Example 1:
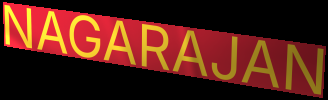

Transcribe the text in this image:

NAGARAJAN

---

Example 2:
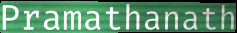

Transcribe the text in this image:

Pramathanath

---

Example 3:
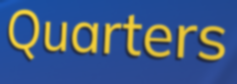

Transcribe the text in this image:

Quarters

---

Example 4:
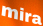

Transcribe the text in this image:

mira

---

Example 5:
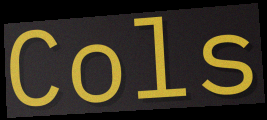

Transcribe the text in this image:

Cols